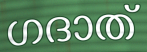
ഗദാത്